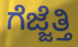
ಗೆಜ್ಜೆತ್ತಿ